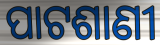
ପାଟଶାଣୀ